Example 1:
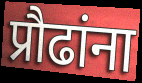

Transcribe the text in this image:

प्रौढांना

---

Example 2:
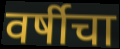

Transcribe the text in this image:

वर्षीचा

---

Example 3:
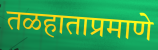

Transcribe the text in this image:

तळहाताप्रमाणे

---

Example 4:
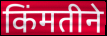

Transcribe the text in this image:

किंमतीने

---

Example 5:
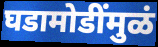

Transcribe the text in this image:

घडामोडींमुळं